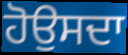
ਹੋਉਸਦਾ